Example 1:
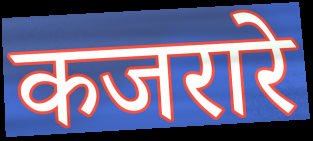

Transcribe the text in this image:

कजरारे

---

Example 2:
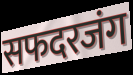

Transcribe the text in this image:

सफदरजंग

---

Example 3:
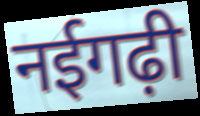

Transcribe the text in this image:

नईगढ़ी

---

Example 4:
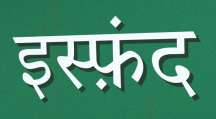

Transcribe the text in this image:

इस्फ़ंद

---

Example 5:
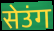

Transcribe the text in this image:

सेउंग